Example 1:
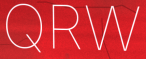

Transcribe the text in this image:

QRW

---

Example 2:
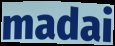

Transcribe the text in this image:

madai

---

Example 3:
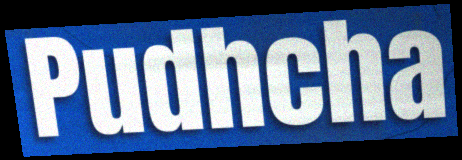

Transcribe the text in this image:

Pudhcha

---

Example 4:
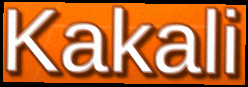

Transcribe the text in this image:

Kakali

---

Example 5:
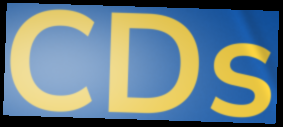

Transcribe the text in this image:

CDs